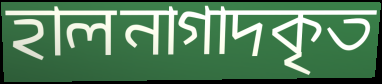
হালনাগাদকৃত